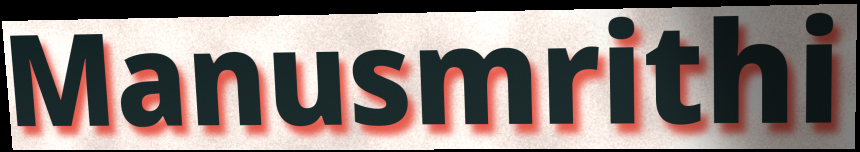
Manusmrithi